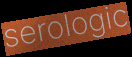
serologic